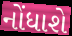
નોંધાશે